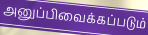
அனுப்பிவைக்கப்படும்